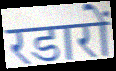
रडारों